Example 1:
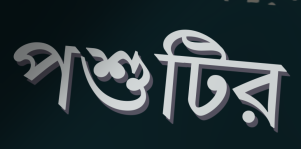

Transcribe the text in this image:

পশুটির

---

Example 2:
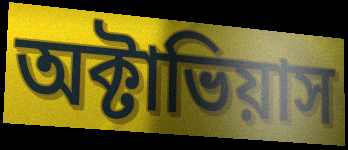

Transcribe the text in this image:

অক্টাভিয়াস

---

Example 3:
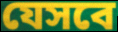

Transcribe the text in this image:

যেসবে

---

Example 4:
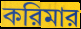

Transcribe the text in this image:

করিমার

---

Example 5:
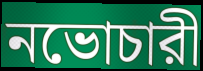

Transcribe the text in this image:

নভোচারী